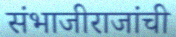
संभाजीराजांची